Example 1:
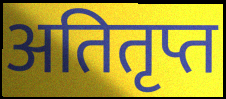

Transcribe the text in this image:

अतितृप्त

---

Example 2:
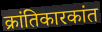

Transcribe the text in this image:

क्रांतिकारकांत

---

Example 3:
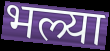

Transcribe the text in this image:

भल्या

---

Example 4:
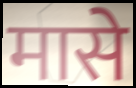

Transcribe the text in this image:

मासे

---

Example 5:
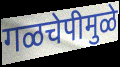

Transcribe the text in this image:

गळचेपीमुळे